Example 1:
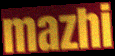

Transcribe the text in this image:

mazhi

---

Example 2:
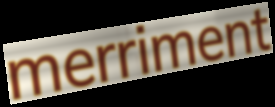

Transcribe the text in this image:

merriment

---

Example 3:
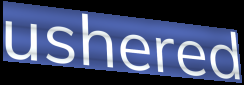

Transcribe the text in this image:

ushered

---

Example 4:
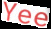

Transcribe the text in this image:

Yee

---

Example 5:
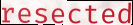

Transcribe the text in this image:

resected